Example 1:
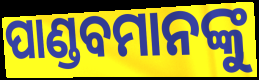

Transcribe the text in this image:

ପାଣ୍ଡବମାନଙ୍କୁ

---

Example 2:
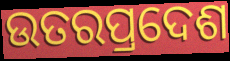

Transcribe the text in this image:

ଉତରପ୍ରଦେଶ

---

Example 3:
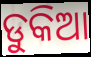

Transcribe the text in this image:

ଡୁକିଆ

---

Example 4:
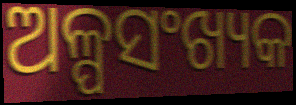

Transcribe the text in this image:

ଅଳ୍ପସଂଖ୍ୟକ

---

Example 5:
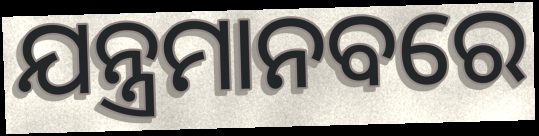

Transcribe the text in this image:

ଯନ୍ତ୍ରମାନବରେ